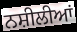
ਨਸ਼ੀਲੀਆਂ